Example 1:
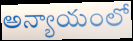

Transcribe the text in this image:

అన్యాయంలో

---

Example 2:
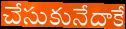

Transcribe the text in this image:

చేసుకునేదాకే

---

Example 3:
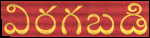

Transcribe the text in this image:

విరగబడి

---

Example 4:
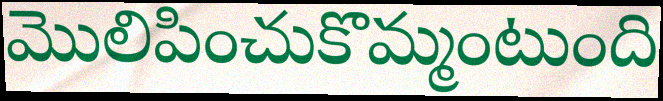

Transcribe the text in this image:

మొలిపించుకొమ్మంటుంది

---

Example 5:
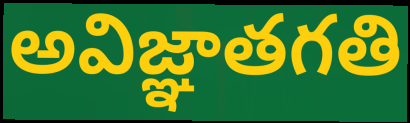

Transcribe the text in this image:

అవిజ్ఞాతగతి